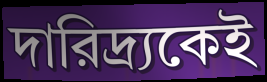
দারিদ্র্যকেই